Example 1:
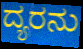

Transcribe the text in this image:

ದ್ಯರನು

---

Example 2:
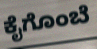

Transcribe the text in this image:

ಕೈಗೊಂಬೆ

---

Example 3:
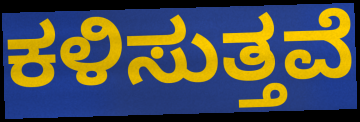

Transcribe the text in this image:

ಕಳಿಸುತ್ತವೆ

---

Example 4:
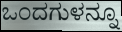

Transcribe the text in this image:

ಒಂದಗುಳನ್ನೂ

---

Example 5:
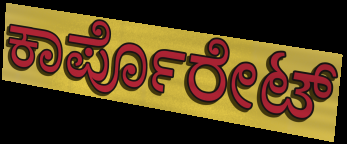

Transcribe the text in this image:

ಕಾರ್ಪೊರೇಟ್